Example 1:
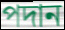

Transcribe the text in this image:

পদান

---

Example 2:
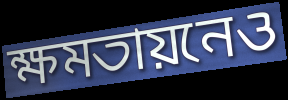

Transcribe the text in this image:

ক্ষমতায়নেও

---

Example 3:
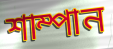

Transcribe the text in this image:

শাম্পান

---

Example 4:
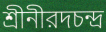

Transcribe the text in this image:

শ্রীনীরদচন্দ্র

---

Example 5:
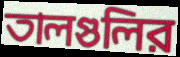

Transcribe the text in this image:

তালগুলির